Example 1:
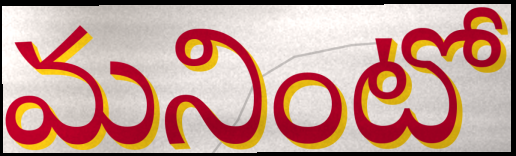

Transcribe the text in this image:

మనింటో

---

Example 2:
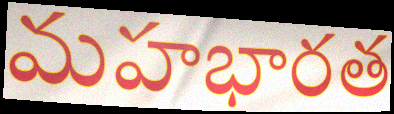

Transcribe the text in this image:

మహభారత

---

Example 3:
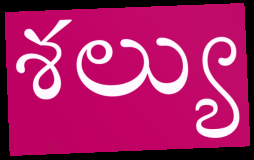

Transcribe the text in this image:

శల్యు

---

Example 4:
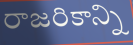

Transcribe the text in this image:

రాజరికాన్ని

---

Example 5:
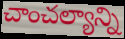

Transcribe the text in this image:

చాంచల్యాన్ని